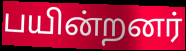
பயின்றனர்